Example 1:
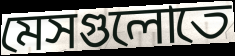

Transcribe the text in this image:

মেসগুলোতে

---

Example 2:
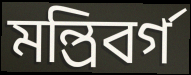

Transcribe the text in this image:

মন্ত্রিবর্গ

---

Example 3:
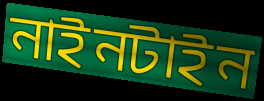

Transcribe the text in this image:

নাইনটাইন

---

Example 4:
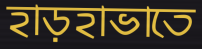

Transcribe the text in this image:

হাড়হাভাতে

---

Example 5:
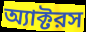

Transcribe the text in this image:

অ্যাক্টরস